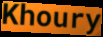
Khoury